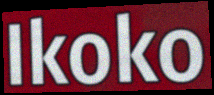
Ikoko